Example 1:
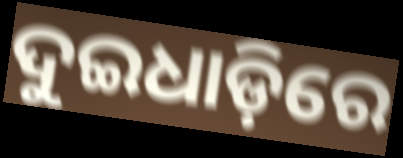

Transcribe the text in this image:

ଦୁଇଧାଡ଼ିରେ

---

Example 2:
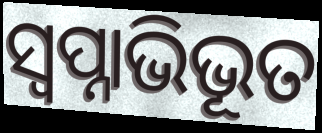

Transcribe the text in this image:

ସ୍ଵପ୍ନାଭିଭୂତ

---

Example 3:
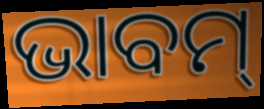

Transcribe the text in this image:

ଭାବମ୍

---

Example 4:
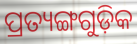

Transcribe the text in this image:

ପ୍ରତ୍ୟଙ୍ଗଗୁଡ଼ିକ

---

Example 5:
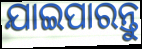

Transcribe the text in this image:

ଯାଇପାରନ୍ତୁ